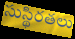
సుస్థిరతలు